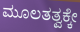
ಮೂಲತತ್ವಕ್ಕೇ